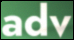
adv